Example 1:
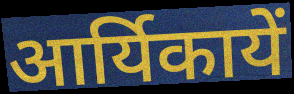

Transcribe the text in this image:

आर्यिकायें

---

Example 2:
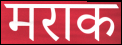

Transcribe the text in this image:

मराक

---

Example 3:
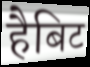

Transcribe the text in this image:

हैबिट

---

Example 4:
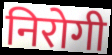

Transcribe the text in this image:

निरोगी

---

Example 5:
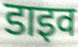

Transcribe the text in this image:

डाइव